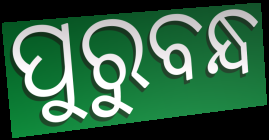
ପୁରୁବନ୍ଧ